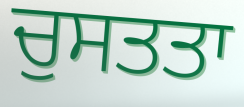
ਚੁਸਤਤਾ